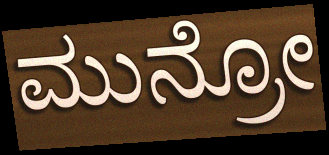
ಮುನ್ರೋ